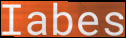
Iabes